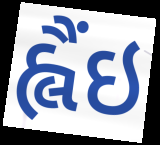
હ્લૈંઇ